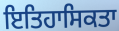
ਇਤਿਹਾਸਿਕਤਾ